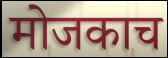
मोजकाच